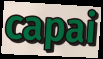
capai